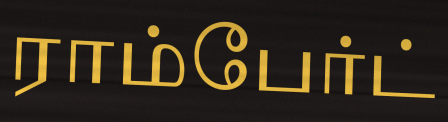
ராம்பேர்ட்